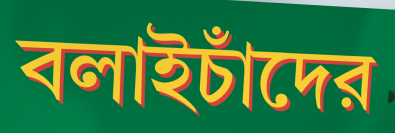
বলাইচাঁদের